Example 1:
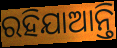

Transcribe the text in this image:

ରହିଯାଆନ୍ତି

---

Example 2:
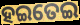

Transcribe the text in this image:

ହଇତେଇ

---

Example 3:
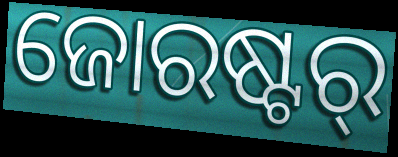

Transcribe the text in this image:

ଜୋରଷ୍ଟର୍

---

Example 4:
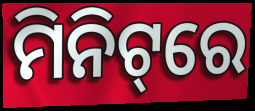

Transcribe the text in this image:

ମିନିଟ୍‌ରେ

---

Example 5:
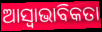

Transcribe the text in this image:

ଆସ୍ବାଭାବିକତା